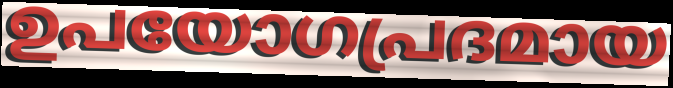
ഉപയോഗപ്രദമായ